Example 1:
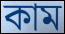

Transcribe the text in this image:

কাম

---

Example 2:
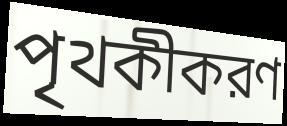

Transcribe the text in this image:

পৃথকীকরণ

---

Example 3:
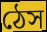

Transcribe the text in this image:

ঠেস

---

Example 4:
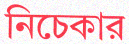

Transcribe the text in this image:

নিচেকার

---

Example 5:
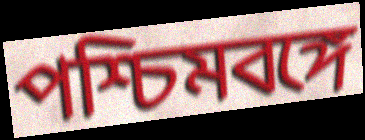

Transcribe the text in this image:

পশ্চিমবঙ্গে